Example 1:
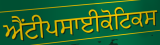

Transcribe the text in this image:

ਐਂਟੀਪਸਾਈਕੋਟਿਕਸ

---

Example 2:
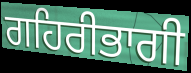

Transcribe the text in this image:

ਗਹਿਰੀਭਾਗੀ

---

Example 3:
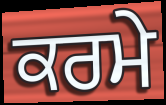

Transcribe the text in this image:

ਕਰਮੇ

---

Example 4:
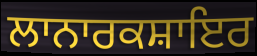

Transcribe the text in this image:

ਲਾਨਾਰਕਸ਼ਾਇਰ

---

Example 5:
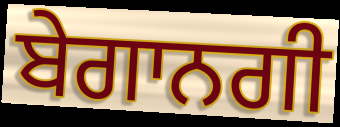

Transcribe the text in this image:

ਬੇਗਾਨਗੀ